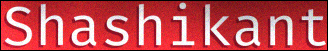
Shashikant